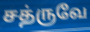
சத்ருவே